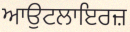
ਆਉਟਲਾਇਰਜ਼